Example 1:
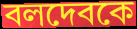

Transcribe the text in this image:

বলদেবকে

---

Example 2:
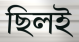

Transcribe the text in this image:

ছিলই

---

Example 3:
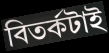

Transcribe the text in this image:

বিতর্কটাই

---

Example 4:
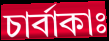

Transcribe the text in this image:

চার্বাকাঃ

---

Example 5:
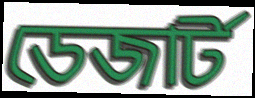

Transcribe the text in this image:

ডেজার্ট